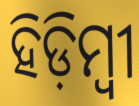
ହିଡ଼ିମ୍ବୀ